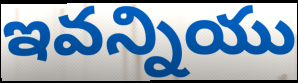
ఇవన్నియు